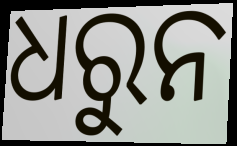
ଧରୁନ